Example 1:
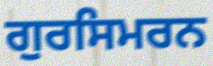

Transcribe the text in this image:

ਗੁਰਸਿਮਰਨ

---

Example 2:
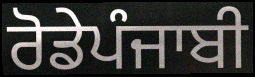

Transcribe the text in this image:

ਰੋਡੇਪੰਜਾਬੀ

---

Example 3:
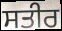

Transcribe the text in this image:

ਸਤੀਰ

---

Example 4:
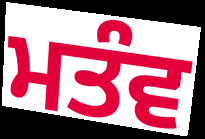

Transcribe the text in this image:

ਮਤੰਵ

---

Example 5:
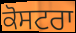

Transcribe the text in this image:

ਕੋਸਟਰਾ